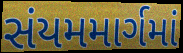
સંયમમાર્ગમાં